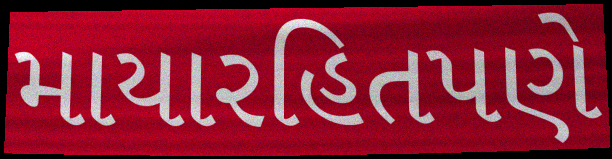
માયારહિતપણે